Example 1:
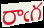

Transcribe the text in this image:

రాఁగ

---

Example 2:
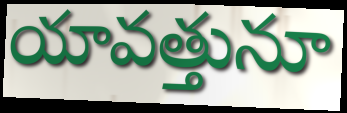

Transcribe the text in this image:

యావత్తునూ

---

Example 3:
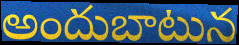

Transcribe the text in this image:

అందుబాటున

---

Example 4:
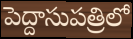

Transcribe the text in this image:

పెద్దాసుపత్రిలో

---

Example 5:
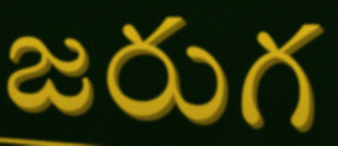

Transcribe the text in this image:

జరుగ